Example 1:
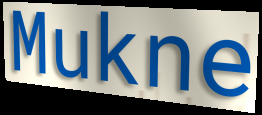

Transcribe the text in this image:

Mukne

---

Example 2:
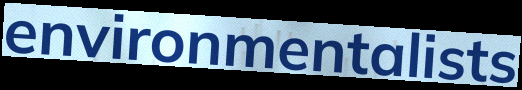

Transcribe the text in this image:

environmentalists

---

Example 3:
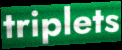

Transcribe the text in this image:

triplets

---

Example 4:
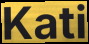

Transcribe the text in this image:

Kati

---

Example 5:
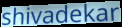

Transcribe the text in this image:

shivadekar